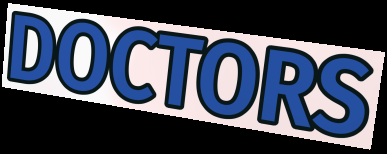
DOCTORS